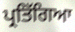
ਪ੍ਰਤਿੱਗਿਆ